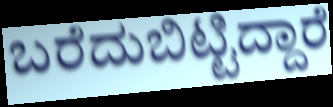
ಬರೆದುಬಿಟ್ಟಿದ್ದಾರೆ